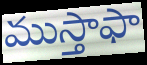
ముస్తాఫా